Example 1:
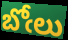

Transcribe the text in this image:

బోఁలు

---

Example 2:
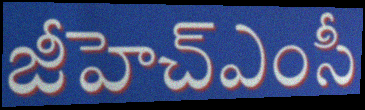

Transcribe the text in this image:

జీహెచ్ఎంసీ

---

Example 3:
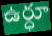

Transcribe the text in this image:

ఉర్ధూ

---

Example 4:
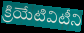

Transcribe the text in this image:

క్రియేటివిటీని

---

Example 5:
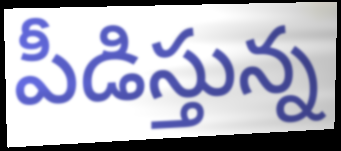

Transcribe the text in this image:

పీడిస్తున్న